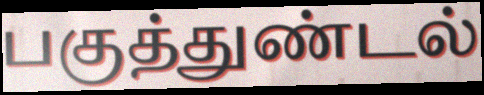
பகுத்துண்டல்